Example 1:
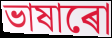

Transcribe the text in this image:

ভাষাৰো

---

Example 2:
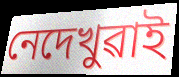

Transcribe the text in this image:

নেদেখুৱাই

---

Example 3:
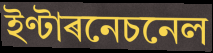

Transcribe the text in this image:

ইণ্টাৰনেচনেল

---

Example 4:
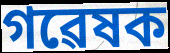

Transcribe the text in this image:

গৱেষক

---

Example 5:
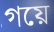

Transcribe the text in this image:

গয়ে